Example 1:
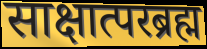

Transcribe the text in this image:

साक्षात्परब्रह्म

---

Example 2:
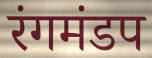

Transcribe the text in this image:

रंगमंडप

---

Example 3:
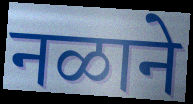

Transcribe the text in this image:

नळाने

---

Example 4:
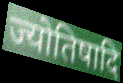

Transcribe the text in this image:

ज्योतिषादि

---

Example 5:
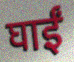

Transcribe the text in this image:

घाईं